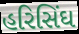
હરિસિંઘ